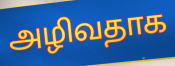
அழிவதாக